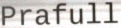
Prafull